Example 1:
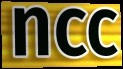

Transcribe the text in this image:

ncc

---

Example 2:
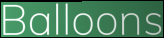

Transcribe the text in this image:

Balloons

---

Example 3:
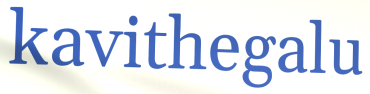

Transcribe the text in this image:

kavithegalu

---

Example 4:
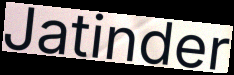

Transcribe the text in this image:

Jatinder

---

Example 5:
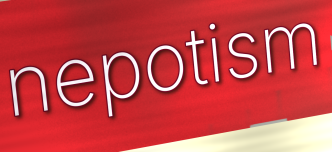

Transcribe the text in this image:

nepotism